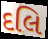
દલિ